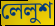
লেলুশ